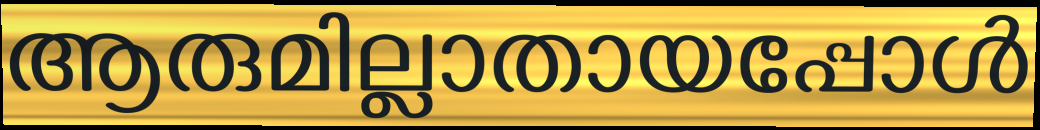
ആരുമില്ലാതായപ്പോൾ